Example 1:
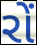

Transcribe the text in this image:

રોં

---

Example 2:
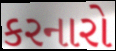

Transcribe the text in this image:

કરનારો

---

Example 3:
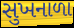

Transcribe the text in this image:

સુખનાળા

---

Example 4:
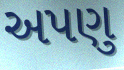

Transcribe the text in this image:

અપણુ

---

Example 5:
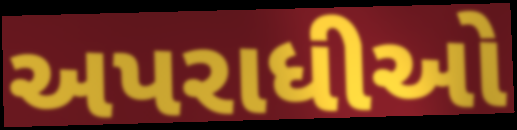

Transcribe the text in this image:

અપરાધીઓ